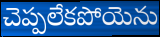
చెప్పలేకపోయెను